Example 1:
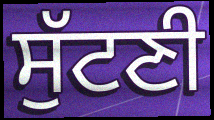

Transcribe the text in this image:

ਸੁੱਟਣੀ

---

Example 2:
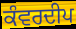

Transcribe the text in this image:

ਕੰਵਰਦੀਪ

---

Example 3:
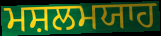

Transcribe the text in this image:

ਮਸ਼ਲਮਯਾਹ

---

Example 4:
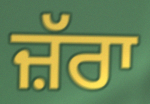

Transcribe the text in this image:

ਜ਼ੱਰਾ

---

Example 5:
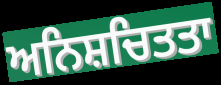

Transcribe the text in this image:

ਅਨਿਸ਼ਚਿਤਤਾ